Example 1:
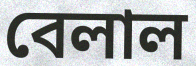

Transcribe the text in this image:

বেলাল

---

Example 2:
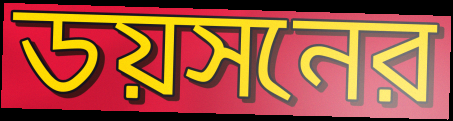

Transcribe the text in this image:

ডয়সনের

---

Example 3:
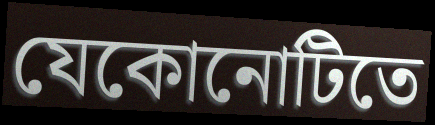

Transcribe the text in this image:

যেকোনোটিতে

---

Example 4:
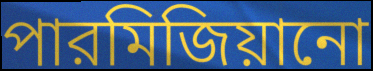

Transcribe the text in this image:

পারমিজিয়ানো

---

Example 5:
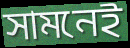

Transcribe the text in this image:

সামনেই